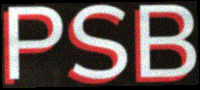
PSB